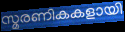
സ്മരണികകളായി